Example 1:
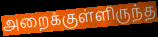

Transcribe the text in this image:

அறைக்குள்ளிருந்த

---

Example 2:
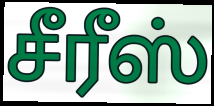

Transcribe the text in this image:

சீரீஸ்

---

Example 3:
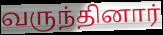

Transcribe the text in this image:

வருந்தினார்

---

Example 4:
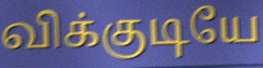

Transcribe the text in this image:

விக்குடியே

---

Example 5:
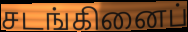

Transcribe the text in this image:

சடங்கினைப்